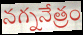
నగ్ననేత్రం